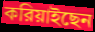
করিয়াইছেন